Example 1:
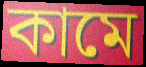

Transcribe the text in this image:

কামে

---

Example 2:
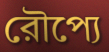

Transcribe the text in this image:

রৌপ্যে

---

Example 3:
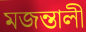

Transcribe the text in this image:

মজন্তালী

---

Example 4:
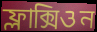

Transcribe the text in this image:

ফ্লাক্সিওন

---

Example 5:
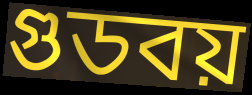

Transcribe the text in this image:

গুডবয়